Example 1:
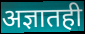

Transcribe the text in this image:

अज्ञातही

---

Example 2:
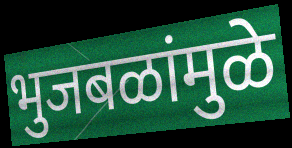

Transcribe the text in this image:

भुजबळांमुळे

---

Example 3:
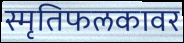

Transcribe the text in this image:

स्मृतिफलकावर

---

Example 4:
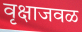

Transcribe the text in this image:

वृक्षाजवळ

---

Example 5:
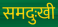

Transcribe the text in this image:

समदुःखी